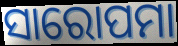
ସାରୋପମା